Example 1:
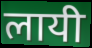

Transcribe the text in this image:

लायी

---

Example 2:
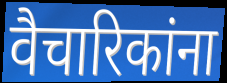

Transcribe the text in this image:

वैचारिकांना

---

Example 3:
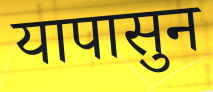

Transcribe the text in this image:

यापासुन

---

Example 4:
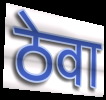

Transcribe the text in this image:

ठेवा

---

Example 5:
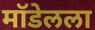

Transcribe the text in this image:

मॉडेलला